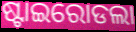
ଷ୍ଟାଇରୋଡଲା